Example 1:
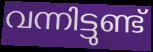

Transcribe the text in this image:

വന്നിട്ടുണ്ട്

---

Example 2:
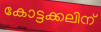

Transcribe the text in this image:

കോട്ടക്കലിന്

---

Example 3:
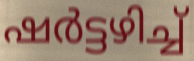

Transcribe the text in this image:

ഷർട്ടഴിച്ച്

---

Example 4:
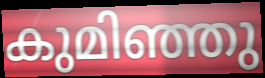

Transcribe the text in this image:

കുമിഞ്ഞു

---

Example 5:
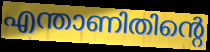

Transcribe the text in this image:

എന്താണിതിന്റെ